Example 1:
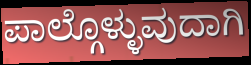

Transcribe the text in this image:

ಪಾಲ್ಗೊಳ್ಳುವುದಾಗಿ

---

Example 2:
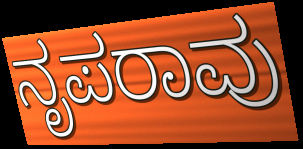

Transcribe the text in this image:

ನೃಪರಾವು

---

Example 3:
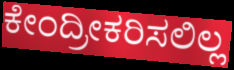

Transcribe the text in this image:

ಕೇಂದ್ರೀಕರಿಸಲಿಲ್ಲ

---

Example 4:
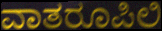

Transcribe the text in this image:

ವಾತರೂಪಿಲಿ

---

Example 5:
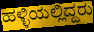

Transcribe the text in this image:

ಹಳ್ಳಿಯಲ್ಲಿದ್ದರು